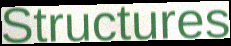
Structures